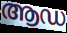
ആഡ